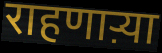
राहणाऱ्‍या